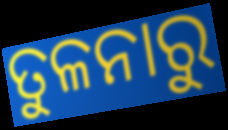
ତୁଳନାରୁ